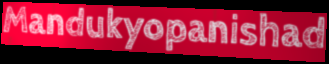
Mandukyopanishad